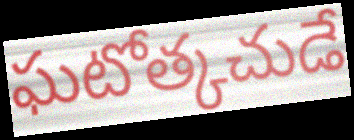
ఘటోత్కచుడే